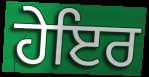
ਹੇਇਰ